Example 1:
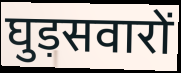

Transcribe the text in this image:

घुड़सवारों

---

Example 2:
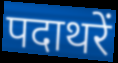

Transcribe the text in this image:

पदाथरें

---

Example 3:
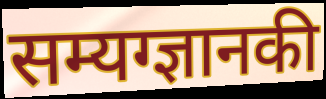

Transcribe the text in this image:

सम्यग्ज्ञानकी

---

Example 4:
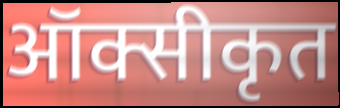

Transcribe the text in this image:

ऑक्सीकृत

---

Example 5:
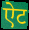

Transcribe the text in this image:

ऐट